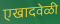
एखादवेळी